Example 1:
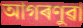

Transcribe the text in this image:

আগৰণুৱা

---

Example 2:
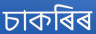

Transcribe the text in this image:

চাকৰিৰ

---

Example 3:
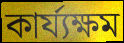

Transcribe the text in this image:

কাৰ্য্যক্ষম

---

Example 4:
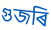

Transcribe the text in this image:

গুজৰি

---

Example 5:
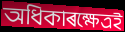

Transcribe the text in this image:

অধিকাৰক্ষেত্ৰই